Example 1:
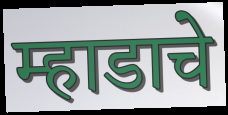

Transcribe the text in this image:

म्हाडाचे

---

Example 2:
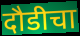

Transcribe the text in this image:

दौडीचा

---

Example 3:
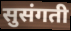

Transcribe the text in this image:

सुसंगती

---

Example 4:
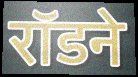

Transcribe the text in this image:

रॉडने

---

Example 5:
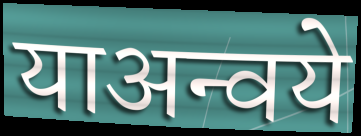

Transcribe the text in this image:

याअन्वये